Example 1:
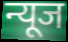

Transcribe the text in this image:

न्‍यूज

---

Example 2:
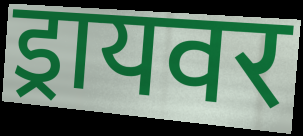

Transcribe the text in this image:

ड्रायवर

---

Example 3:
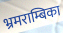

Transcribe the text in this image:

भ्रमराम्बिका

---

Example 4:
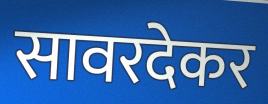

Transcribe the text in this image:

सावरदेकर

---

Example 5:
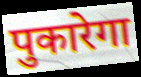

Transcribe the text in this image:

पुकारेगा